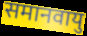
समानवायु